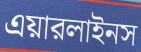
এয়ারলাইনস